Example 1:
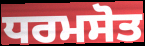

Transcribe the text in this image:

ਧਰਮਸੋਤ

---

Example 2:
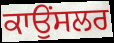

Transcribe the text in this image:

ਕਾਉਂਸਲਰ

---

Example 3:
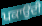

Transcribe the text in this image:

ਪਕਾਉਂਦੀ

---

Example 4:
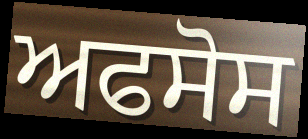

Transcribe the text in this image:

ਅਫਸੋਸ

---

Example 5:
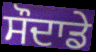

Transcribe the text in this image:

ਸੌਦਾਡੇ